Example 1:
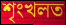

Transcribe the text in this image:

শৃংখলত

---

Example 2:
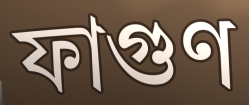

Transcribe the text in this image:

ফাগুণ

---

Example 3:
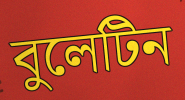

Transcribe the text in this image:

বুলেটিন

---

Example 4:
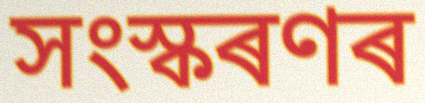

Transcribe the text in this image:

সংস্কৰণৰ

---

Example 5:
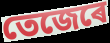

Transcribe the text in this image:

তেজেৰে